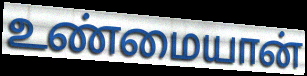
உண்மையான்